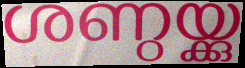
ശണ്ഠയ്ക്കു